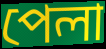
পেলা